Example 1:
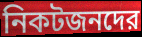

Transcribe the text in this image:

নিকটজনদের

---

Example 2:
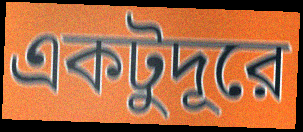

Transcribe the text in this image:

একটুদূরে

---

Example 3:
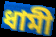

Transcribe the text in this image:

ধামী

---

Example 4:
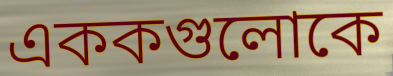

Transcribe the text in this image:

এককগুলোকে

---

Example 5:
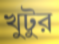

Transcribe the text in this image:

খুটুর